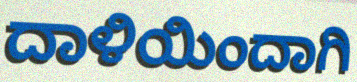
ದಾಳಿಯಿಂದಾಗಿ